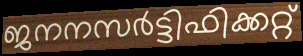
ജനനസർട്ടിഫിക്കറ്റ്